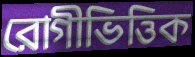
রোগীভিত্তিক